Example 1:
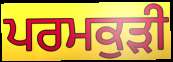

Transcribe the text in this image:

ਪਰਮਕੁੜੀ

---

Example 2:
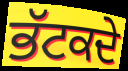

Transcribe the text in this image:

ਭੱਟਕਦੇ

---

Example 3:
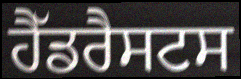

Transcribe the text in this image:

ਹੈੱਡਰੈਸਟਸ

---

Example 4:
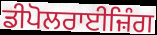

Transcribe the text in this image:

ਡੀਪੋਲਰਾਈਜ਼ਿੰਗ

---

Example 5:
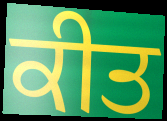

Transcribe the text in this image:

ਕੀਤ